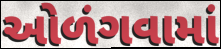
ઓળંગવામાં